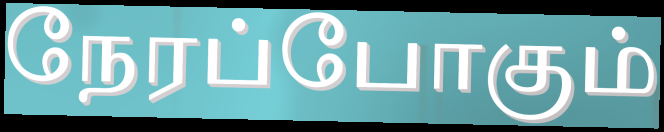
நேரப்போகும்